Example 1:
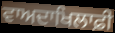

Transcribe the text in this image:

ਵਾਅਦਾਖਿਲਾਫ਼ੀ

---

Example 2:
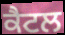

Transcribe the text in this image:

ਕੈਟਲ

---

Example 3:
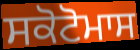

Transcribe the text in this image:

ਸਕੋਟੋਮਾਸ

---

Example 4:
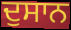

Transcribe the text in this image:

ਦੁਸਾਨ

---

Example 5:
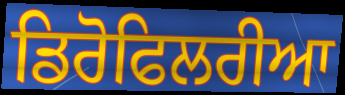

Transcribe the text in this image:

ਡਿਰੋਫਿਲਰੀਆ